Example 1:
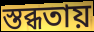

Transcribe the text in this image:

স্তব্ধতায়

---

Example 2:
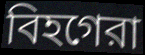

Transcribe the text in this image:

বিহগেরা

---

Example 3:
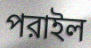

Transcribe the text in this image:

পরাইল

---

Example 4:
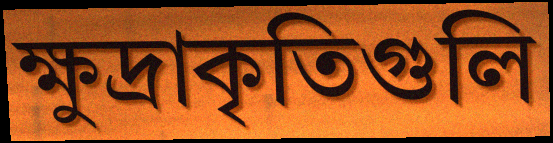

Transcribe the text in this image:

ক্ষুদ্রাকৃতিগুলি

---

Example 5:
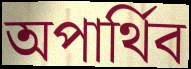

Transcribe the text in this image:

অপার্থিব